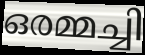
ഒരമ്മച്ചി